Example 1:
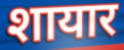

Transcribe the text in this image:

शायार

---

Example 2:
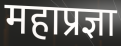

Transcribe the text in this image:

महाप्रज्ञा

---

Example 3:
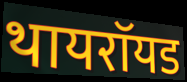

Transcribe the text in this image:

थायरॉयड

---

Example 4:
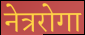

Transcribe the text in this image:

नेत्ररोगा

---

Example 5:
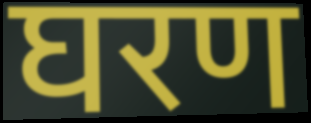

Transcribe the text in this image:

घरण